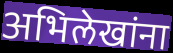
अभिलेखांना